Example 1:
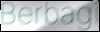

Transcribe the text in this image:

Berbagi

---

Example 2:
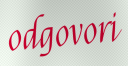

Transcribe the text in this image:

odgovori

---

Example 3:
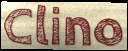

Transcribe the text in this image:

Clino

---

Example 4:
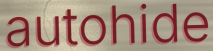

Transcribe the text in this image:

autohide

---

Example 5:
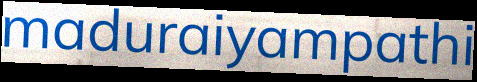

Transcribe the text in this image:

maduraiyampathi